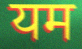
यम